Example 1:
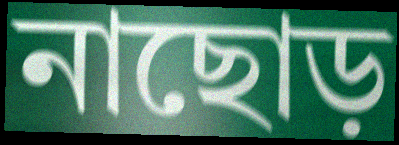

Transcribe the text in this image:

নাছোড়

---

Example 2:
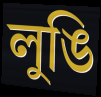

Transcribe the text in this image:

লুঙি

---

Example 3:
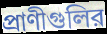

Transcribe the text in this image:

প্রাণীগুলির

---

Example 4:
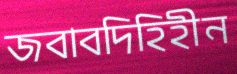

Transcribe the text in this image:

জবাবদিহিহীন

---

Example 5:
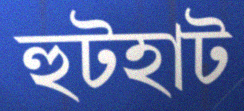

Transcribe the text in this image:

হুটহাট